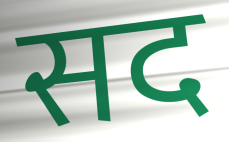
सद